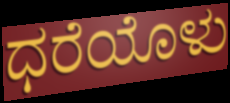
ಧರೆಯೊಳು